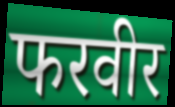
फरवीर